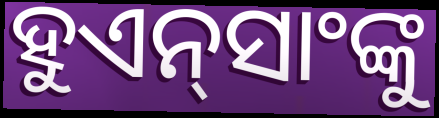
ହୁଏନ୍‌ସାଂଙ୍କୁ